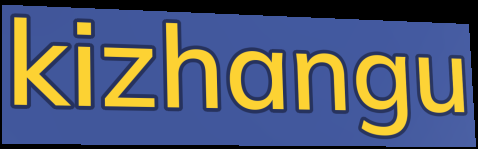
kizhangu